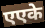
एएके